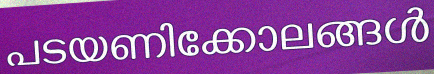
പടയണിക്കോലങ്ങൾ